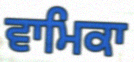
ਵਾਮਿਕਾ